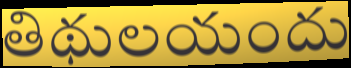
తిథులయందు